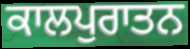
ਕਾਲਪੁਰਾਤਨ